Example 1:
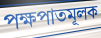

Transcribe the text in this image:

পক্ষপাতমূলক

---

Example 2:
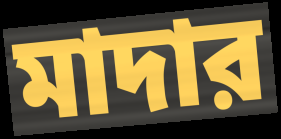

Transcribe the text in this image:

মাদার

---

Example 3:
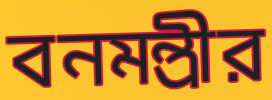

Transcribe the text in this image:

বনমন্ত্রীর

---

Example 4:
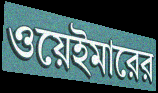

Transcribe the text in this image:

ওয়েইমারের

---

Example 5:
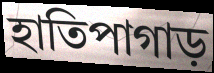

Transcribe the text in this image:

হাতিপাগাড়